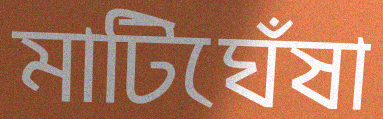
মাটিঘেঁষা